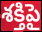
శక్తిపై